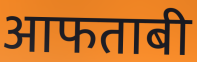
आफताबी